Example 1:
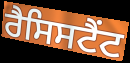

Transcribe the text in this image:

ਰੈਸਿਸਟੈਂਟ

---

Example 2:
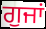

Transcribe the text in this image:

ਗੁਜਾਂ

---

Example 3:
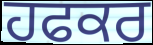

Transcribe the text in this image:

ਹਫਕਰ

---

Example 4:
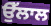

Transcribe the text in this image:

ਉੱਲਾਲ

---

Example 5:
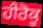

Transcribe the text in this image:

ਹੀਰੋਕੂ